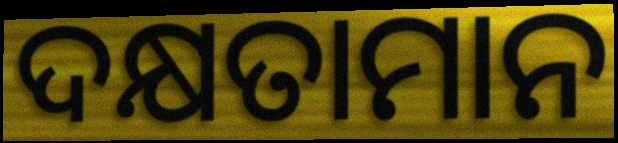
ଦକ୍ଷତାମାନ